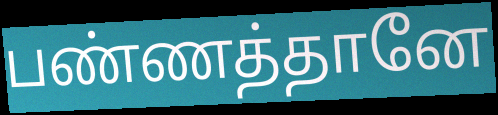
பண்ணத்தானே